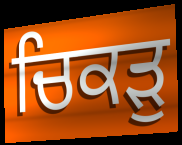
ਚਿਕੜੁ